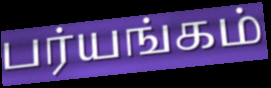
பர்யங்கம்